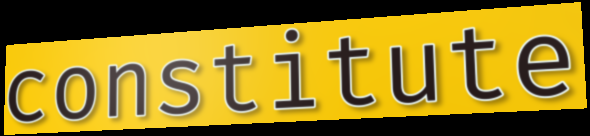
constitute